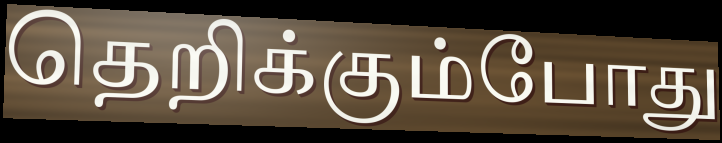
தெறிக்கும்போது